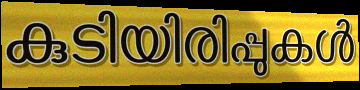
കുടിയിരിപ്പുകൾ